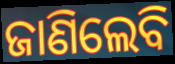
ଜାଣିଲେବି